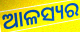
ଆଳସ୍ୟର